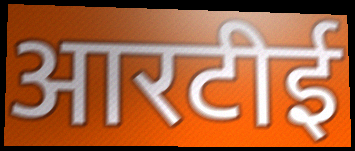
आरटीई